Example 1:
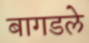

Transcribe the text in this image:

बागडले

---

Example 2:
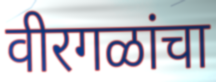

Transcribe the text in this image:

वीरगळांचा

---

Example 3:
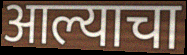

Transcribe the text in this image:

आल्‍याचा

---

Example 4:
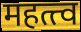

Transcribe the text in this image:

महत्‍त्‍व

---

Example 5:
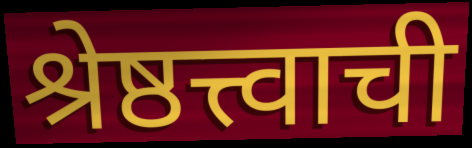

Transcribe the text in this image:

श्रेष्ठत्त्वाची